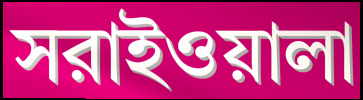
সরাইওয়ালা